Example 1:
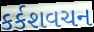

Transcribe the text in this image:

કર્કશવચન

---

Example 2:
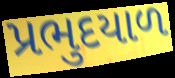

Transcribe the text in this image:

પ્રભુદયાળ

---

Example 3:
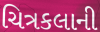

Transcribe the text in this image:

ચિત્રકલાની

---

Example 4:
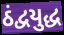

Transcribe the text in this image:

ઠંદ્વયુદ્ધ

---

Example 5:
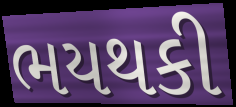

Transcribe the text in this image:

ભયથકી